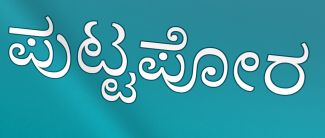
ಪುಟ್ಟಪೋರ